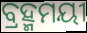
ବ୍ରହ୍ମମୟୀ